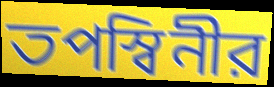
তপস্বিনীর